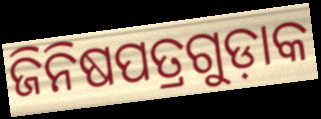
ଜିନିଷପତ୍ରଗୁଡ଼ାକ